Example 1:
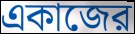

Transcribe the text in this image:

একাজের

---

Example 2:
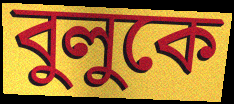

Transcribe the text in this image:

বুলুকে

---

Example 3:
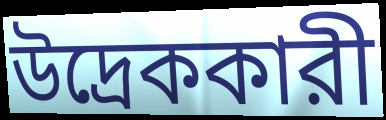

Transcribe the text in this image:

উদ্রেককারী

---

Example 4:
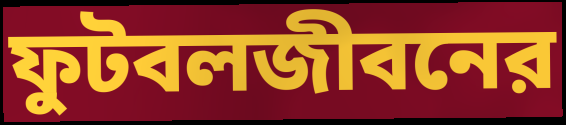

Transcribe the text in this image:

ফুটবলজীবনের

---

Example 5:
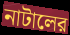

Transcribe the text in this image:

নাটালের